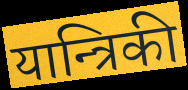
यान्त्रिकी